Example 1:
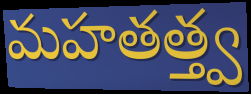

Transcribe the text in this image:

మహతత్త్వ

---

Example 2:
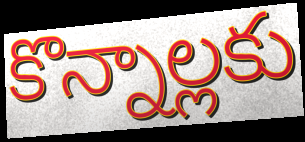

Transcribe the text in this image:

కొన్నాల్లకు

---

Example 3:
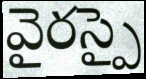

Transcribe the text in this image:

వైరస్పై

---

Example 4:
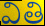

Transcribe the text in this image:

వితి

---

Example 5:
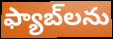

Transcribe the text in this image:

ఫ్యాబ్‌లను